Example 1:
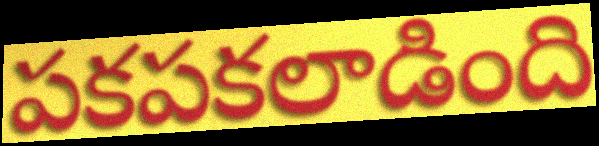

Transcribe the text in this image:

పకపకలాడింది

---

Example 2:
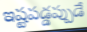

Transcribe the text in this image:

ఇష్టపడ్డప్పుడే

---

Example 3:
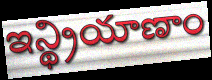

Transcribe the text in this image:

ఇన్థ్రియాణాం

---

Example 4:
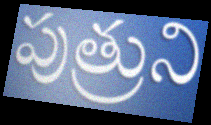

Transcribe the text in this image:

పుత్రుని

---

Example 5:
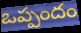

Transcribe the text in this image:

ఒప్పందం